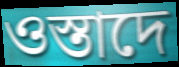
ওস্তাদে